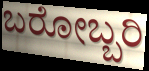
ಬರೋಬ್ಬರಿ